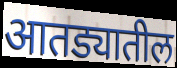
आतड्यातील